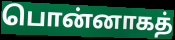
பொன்னாகத்